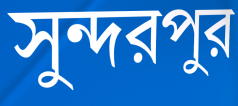
সুন্দরপুর